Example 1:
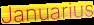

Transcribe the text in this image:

Januarius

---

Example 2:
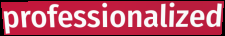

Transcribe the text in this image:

professionalized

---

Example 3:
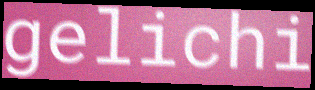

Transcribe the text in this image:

gelichi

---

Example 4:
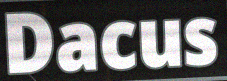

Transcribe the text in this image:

Dacus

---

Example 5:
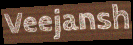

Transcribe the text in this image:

Veejansh